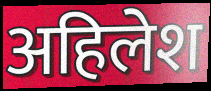
अहिलेश